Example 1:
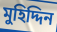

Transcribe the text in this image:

মুহিদ্দিন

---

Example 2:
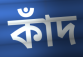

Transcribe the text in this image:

কাঁদ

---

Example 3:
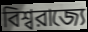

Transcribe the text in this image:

বিশ্বরাজ্যে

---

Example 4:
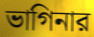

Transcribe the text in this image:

ভাগিনার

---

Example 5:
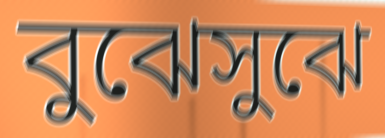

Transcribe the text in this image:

বুঝেসুঝে